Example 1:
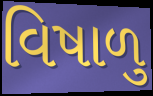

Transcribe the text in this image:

વિષાળુ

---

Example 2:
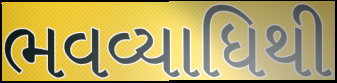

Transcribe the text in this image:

ભવવ્યાધિથી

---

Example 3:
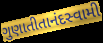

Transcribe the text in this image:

ગુણાતીતાનંદસ્વામી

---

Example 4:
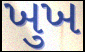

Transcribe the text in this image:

ખુખ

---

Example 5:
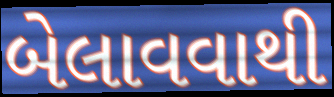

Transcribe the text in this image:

બેલાવવાથી